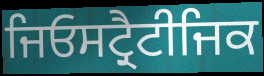
ਜਿਓਸਟ੍ਰੈਟੀਜਿਕ